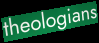
theologians